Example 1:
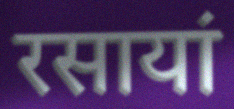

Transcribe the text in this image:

रसायां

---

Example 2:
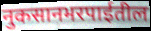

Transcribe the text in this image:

नुकसानभरपाईतील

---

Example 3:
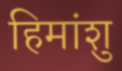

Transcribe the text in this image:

हिमांशु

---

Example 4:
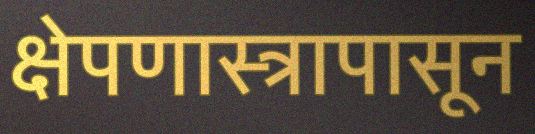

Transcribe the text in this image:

क्षेपणास्त्रापासून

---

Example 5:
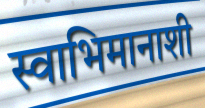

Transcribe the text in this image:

स्वाभिमानाशी